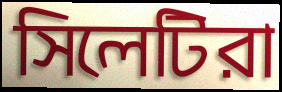
সিলেটিরা